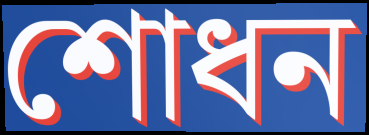
শোধন